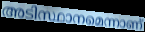
അടിസ്ഥാനമെന്നാണ്